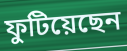
ফুটিয়েছেন